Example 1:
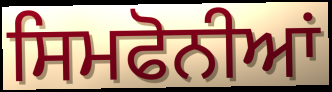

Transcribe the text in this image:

ਸਿਮਫੋਨੀਆਂ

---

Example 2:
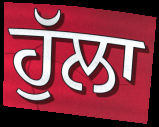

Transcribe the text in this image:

ਹੁੱਲਾ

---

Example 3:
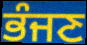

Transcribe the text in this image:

ਭੰਜਣ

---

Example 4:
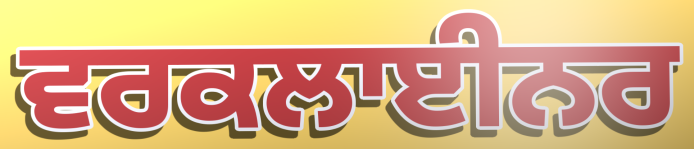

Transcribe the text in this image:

ਵਰਕਲਾਈਨਰ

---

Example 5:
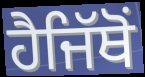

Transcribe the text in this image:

ਹੈਜਿੱਥੋਂ